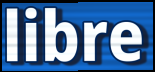
libre